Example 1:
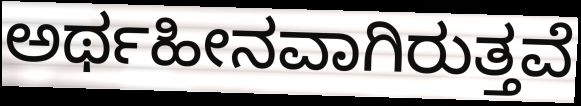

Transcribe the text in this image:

ಅರ್ಥಹೀನವಾಗಿರುತ್ತವೆ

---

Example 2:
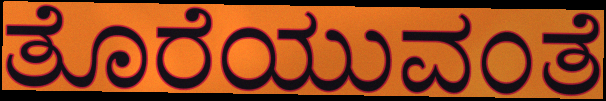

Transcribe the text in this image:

ತೊರೆಯುವಂತೆ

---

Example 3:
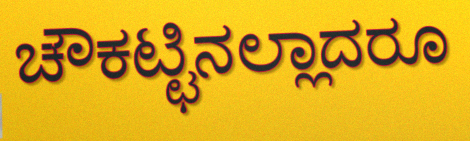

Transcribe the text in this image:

ಚೌಕಟ್ಟಿನಲ್ಲಾದರೂ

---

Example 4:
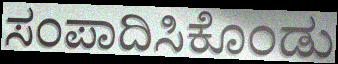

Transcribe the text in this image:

ಸಂಪಾದಿಸಿಕೊಂಡು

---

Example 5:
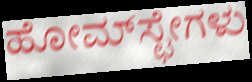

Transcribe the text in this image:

ಹೋಮ್‌ಸ್ಟೇಗಳು